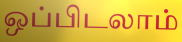
ஒப்பிடலாம்